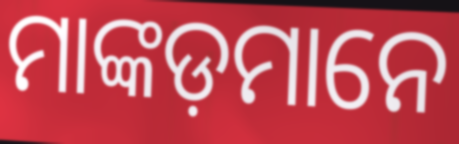
ମାଙ୍କଡ଼ମାନେ